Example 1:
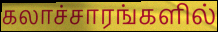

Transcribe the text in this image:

கலாச்சாரங்களில்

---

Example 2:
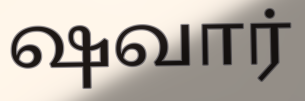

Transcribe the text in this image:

ஷவார்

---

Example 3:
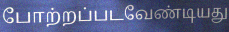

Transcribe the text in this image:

போற்றப்படவேண்டியது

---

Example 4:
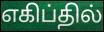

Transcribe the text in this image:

எகிப்தில்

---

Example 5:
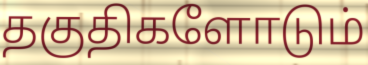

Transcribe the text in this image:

தகுதிகளோடும்